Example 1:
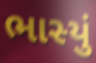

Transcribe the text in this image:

ભાસ્યું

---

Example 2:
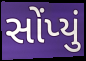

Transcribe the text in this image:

સોંપ્યું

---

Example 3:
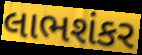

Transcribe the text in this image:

લાભશંકર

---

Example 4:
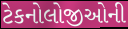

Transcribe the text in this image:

ટેકનોલોજીઓની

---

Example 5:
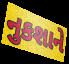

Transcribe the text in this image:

નુકશાને